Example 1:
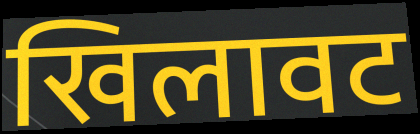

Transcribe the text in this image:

खिलावट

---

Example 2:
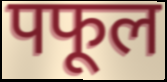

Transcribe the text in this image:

पफूल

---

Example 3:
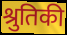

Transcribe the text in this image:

श्रुतिकी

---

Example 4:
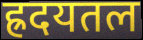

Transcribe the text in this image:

ह्रदयतल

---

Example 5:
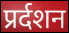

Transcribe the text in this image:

प्रर्दशन